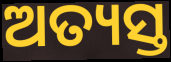
ଅତ୍ୟସ୍ତ